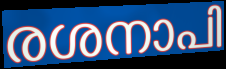
രശനാപി